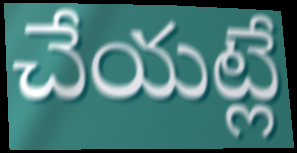
చేయట్లే